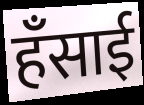
हँसाई